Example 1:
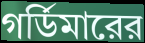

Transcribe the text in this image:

গর্ডিমারের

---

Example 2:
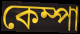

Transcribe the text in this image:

কেম্পা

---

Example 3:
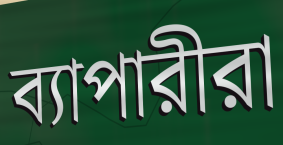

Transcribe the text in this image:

ব্যাপারীরা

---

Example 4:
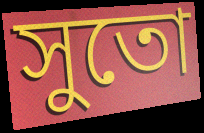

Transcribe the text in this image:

সুতো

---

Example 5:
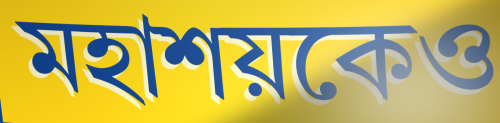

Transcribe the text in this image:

মহাশয়কেও